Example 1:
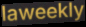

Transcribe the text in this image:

laweekly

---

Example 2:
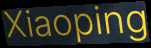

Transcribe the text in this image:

Xiaoping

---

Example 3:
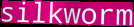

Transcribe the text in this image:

silkworm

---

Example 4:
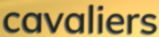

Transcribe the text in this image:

cavaliers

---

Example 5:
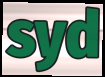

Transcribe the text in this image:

syd